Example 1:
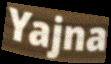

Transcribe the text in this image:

Yajna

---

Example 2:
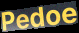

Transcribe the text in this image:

Pedoe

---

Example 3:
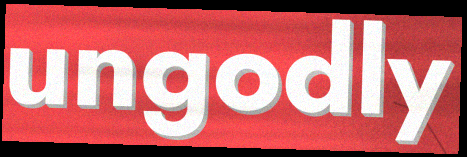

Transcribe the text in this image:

ungodly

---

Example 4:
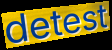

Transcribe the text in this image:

detest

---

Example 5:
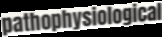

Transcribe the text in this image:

pathophysiological